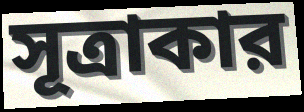
সূত্রাকার